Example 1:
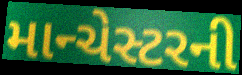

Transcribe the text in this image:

માન્ચેસ્ટરની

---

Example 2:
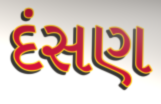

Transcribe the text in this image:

દંસણ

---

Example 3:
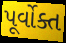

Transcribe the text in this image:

પૂર્વોક્ત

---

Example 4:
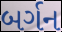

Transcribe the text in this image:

બર્ગન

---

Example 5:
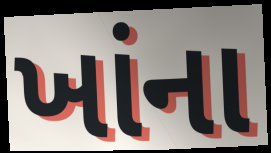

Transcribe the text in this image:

ખાંના